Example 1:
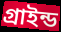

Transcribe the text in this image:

গ্রাইন্ড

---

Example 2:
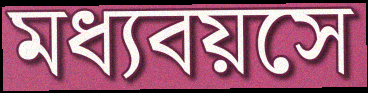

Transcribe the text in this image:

মধ্যবয়সে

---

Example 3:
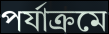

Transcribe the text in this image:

পর্যাক্রমে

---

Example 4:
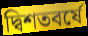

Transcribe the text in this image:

দ্বিশতবর্ষে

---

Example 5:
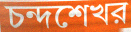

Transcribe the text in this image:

চন্দশেখর